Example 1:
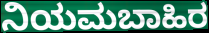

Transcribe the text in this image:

ನಿಯಮಬಾಹಿರ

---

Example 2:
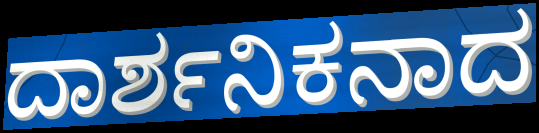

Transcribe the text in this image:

ದಾರ್ಶನಿಕನಾದ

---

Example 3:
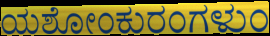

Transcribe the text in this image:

ಯಶೋಂಕುರಂಗಳುಂ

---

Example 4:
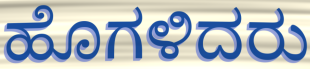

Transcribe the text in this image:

ಹೊಗಳಿದರು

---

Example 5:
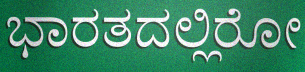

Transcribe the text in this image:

ಭಾರತದಲ್ಲಿರೋ